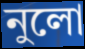
নুলো